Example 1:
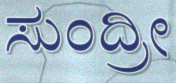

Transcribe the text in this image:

ಸುಂದ್ರೀ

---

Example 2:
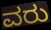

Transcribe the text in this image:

ವರು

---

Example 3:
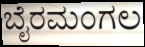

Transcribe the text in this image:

ಬೈರಮಂಗಲ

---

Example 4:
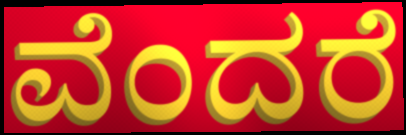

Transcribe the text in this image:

ವೆಂದರೆ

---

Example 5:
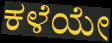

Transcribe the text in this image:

ಕಳೆಯೇ